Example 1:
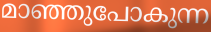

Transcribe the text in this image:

മാഞ്ഞുപോകുന്ന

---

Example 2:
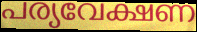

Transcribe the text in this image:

പര്യവേക്ഷണ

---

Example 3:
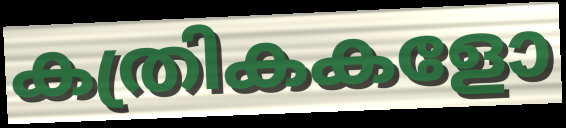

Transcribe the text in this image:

കത്രികകളോ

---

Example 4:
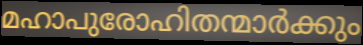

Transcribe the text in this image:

മഹാപുരോഹിതന്മാർക്കും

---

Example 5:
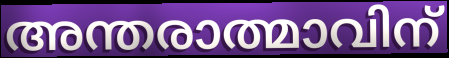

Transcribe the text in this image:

അന്തരാത്മാവിന്